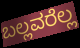
ಬಲ್ಲವರೆಲ್ಲ